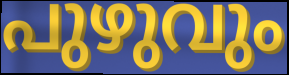
പുഴുവും